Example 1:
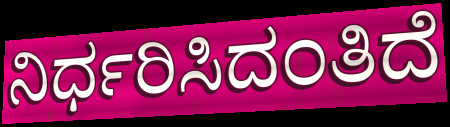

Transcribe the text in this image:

ನಿರ್ಧರಿಸಿದಂತಿದೆ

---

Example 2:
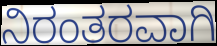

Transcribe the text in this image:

ನಿರಂತರವಾಗಿ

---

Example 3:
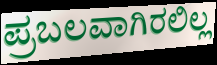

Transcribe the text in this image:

ಪ್ರಬಲವಾಗಿರಲಿಲ್ಲ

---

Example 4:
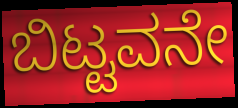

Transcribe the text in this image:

ಬಿಟ್ಟವನೇ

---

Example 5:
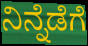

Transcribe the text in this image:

ನಿನ್ನೆಡೆಗೆ